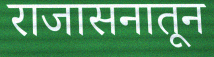
राजासनातून